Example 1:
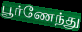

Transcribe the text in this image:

பூர்ணேந்து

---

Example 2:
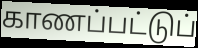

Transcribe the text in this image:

காணப்பட்டுப்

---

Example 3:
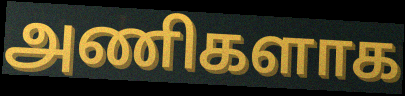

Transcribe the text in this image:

அணிகளாக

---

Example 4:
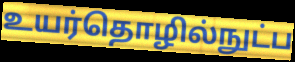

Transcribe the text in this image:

உயர்தொழில்நுட்ப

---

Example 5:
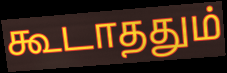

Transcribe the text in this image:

கூடாததும்